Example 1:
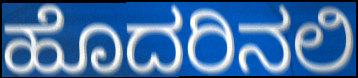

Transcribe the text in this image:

ಹೊದರಿನಲಿ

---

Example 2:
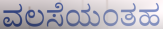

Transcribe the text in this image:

ವಲಸೆಯಂತಹ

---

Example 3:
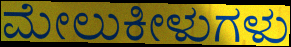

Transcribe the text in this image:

ಮೇಲುಕೀಳುಗಳು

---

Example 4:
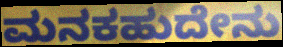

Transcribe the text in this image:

ಮನಕಹುದೇನು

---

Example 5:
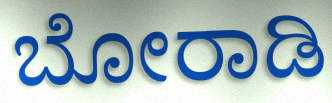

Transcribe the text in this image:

ಬೋರಾಡಿ